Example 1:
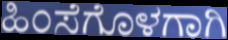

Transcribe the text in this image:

ಹಿಂಸೆಗೊಳಗಾಗಿ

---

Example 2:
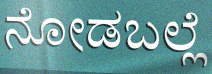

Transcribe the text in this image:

ನೋಡಬಲ್ಲೆ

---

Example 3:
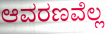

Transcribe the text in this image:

ಆವರಣವೆಲ್ಲ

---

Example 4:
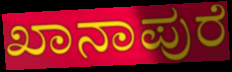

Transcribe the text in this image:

ಖಾನಾಪುರೆ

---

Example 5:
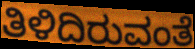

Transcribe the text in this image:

ತಿಳಿದಿರುವಂತೆ